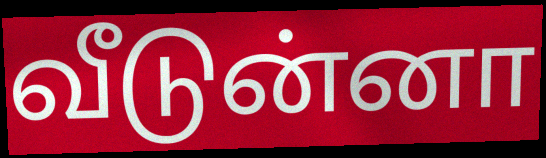
வீடுன்னா